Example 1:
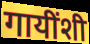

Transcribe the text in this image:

गायींशी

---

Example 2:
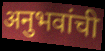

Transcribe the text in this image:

अनुभवांची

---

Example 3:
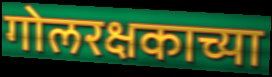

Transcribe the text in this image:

गोलरक्षकाच्या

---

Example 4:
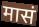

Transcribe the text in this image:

मासं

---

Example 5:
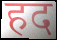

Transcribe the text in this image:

हद